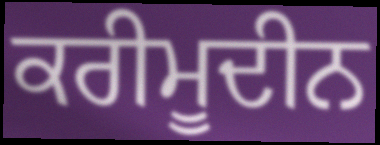
ਕਰੀਮੂਦੀਨ